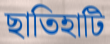
ছাতিহাটি